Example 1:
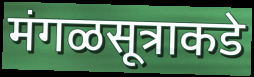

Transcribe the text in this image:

मंगळसूत्राकडे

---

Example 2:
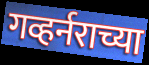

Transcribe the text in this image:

गव्हर्नराच्या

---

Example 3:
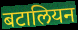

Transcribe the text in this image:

बटालियन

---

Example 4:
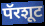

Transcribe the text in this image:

पॅरशूट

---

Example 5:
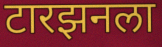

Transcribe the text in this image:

टारझनला